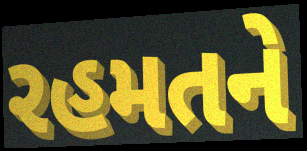
રહમતને